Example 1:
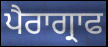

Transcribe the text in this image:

ਪੈਰਾਗ੍ਰਾਫ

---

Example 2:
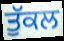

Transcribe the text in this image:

ਤੁੱਕਲ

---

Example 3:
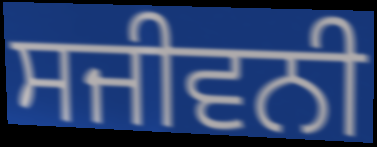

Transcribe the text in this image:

ਸਜੀਵਨੀ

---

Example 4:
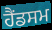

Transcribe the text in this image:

ਹੈਂਡਸਮ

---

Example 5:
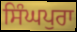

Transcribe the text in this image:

ਸਿੰਘਪੁਰਾ